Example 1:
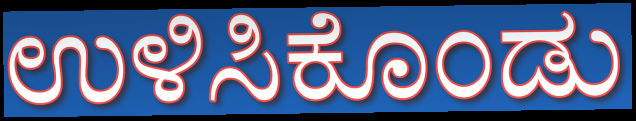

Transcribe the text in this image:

ಉಳಿಸಿಕೊಂಡು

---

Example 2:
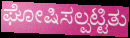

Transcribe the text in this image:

ಘೋಷಿಸಲ್ಪಟ್ಟಿತು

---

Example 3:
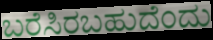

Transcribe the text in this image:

ಬರೆಸಿರಬಹುದೆಂದು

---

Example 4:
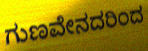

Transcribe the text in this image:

ಗುಣವೇನದರಿಂದ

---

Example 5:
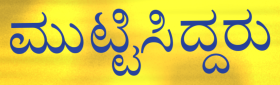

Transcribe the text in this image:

ಮುಟ್ಟಿಸಿದ್ದರು